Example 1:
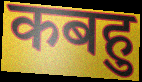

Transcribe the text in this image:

कबहु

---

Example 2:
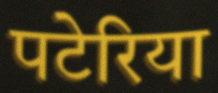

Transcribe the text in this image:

पटेरिया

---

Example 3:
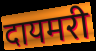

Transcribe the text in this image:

दायमरी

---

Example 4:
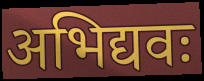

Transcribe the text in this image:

अभिद्यवः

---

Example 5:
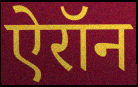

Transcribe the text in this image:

ऐरॉन